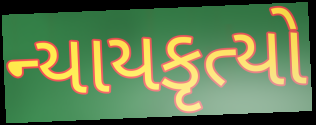
ન્યાયકૃત્યો